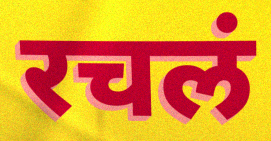
रचलं